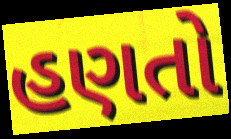
હણતો